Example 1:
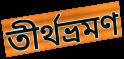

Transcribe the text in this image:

তীৰ্থভ্ৰমণ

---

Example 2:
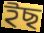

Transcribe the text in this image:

ইছ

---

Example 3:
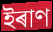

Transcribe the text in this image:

ইৰাণ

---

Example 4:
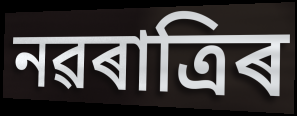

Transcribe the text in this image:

নৱৰাত্ৰিৰ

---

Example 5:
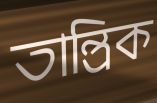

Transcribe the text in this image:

তান্ত্ৰিক